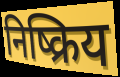
निष्क्रिय